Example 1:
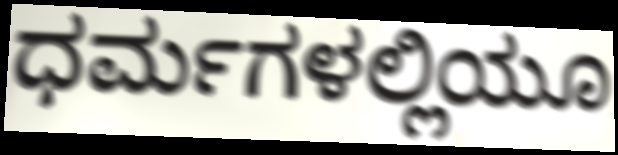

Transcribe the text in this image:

ಧರ್ಮಗಳಲ್ಲಿಯೂ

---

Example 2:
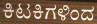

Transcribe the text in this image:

ಕಿಟಕಿಗಳಿಂದ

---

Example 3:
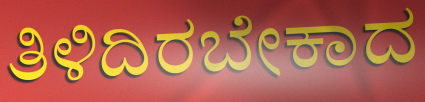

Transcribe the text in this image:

ತಿಳಿದಿರಬೇಕಾದ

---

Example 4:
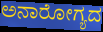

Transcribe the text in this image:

ಅನಾರೋಗ್ಯದ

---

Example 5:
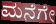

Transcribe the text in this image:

ಮನೆಗೇ